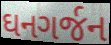
ઘનગર્જન